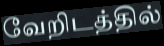
வேறிடத்தில்